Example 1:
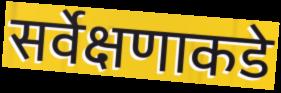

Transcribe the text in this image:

सर्वेक्षणाकडे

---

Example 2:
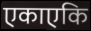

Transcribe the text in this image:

एकाएकि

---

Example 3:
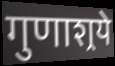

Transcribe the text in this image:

गुणाश्रये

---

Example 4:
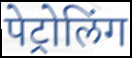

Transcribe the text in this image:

पेट्रोलिंग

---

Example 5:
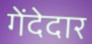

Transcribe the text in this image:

गेंदेदार